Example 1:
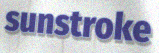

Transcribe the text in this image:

sunstroke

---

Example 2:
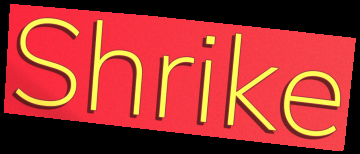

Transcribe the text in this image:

Shrike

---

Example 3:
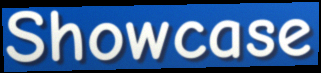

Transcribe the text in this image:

Showcase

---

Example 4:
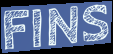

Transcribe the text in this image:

FINS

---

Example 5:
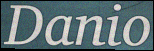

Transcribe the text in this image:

Danio